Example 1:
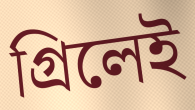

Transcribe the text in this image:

গ্রিলেই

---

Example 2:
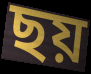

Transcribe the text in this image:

ছয়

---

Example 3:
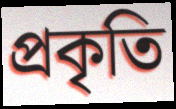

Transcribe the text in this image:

প্রকৃতি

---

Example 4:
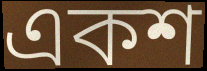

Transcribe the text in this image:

একশ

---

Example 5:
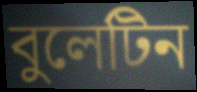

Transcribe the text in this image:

বুলেটিন